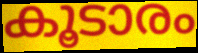
കൂടാരം